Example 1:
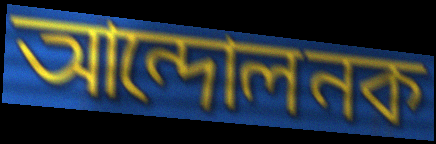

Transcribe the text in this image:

আন্দোলনক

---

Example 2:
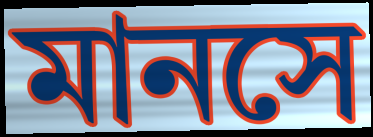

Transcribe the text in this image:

মানসে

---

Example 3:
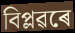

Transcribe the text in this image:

বিপ্লৱৰে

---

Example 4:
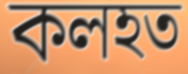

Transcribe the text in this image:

কলহত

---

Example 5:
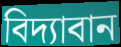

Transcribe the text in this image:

বিদ্যাবান